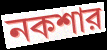
নকশার